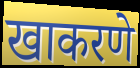
खाकरणे